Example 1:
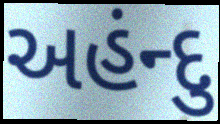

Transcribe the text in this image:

અહંન્દુ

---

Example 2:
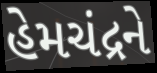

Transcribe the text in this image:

હેમચંદ્રને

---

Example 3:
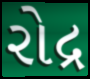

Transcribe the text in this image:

રોદ્ર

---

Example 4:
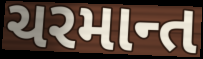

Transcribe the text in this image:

ચરમાન્ત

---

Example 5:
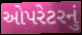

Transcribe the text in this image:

ઓપરેટરનું